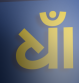
ଧାଁ